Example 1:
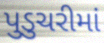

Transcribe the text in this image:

પુડુચરીમાં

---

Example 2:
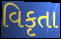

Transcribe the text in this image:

વિકૃતા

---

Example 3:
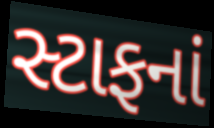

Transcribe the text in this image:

સ્ટાફનાં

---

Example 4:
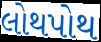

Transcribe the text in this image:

લોથપોથ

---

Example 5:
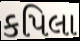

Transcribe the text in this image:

કપિલા